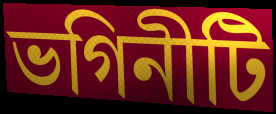
ভগিনীটি